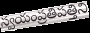
స్వయంప్రతిపత్తిని